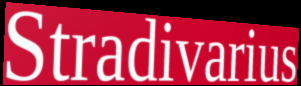
Stradivarius